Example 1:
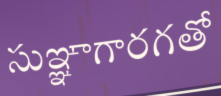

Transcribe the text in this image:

సుఞ్ఞాగారగతో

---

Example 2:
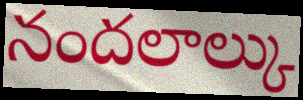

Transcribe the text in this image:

నందలాల్కు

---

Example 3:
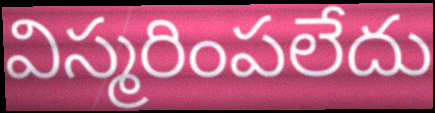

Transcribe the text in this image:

విస్మరింపలేదు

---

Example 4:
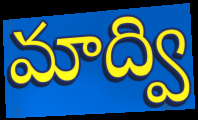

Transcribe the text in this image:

మాద్వి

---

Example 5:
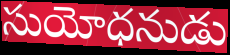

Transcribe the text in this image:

సుయోధనుడు